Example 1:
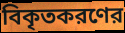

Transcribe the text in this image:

বিকৃতকরণের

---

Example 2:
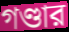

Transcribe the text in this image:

গণ্ডার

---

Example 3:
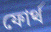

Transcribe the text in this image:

ফোর্থ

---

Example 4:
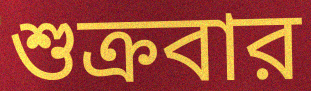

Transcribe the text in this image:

শুক্রবার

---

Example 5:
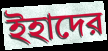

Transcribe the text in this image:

ইহাদের